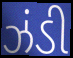
ઝંડી